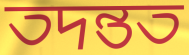
তদন্তত